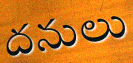
దనులు